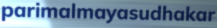
parimalmayasudhakar